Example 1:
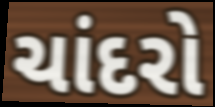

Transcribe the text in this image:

ચાંદરો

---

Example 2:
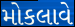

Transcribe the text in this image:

મોકલાવે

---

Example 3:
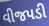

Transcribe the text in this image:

વીજપડી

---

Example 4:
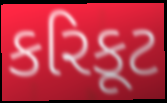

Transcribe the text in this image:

કરિકૂટ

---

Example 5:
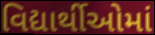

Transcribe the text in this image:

વિદ્યાર્થીઓમાં